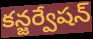
కన్జర్వేషన్